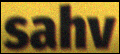
sahv